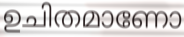
ഉചിതമാണോ